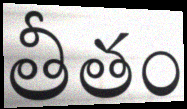
తీతం